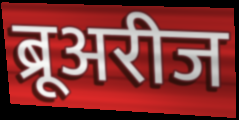
ब्रूअरीज